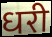
धरी